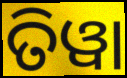
ତିୱା